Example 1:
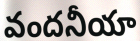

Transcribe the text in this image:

వందనీయా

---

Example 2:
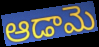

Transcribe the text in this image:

ఆడామె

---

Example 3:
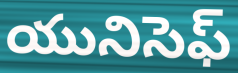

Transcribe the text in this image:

యునిసెఫ్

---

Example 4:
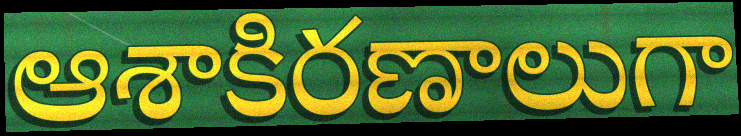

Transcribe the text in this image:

ఆశాకిరణాలుగా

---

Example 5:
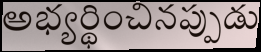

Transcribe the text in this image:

అభ్యర్థించినప్పుడు